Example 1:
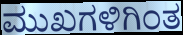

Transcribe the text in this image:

ಮುಖಗಳಿಗಿಂತ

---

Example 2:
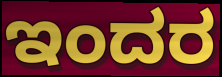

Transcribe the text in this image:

ಇಂದರ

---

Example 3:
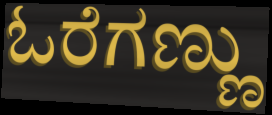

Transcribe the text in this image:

ಓರೆಗಣ್ಣು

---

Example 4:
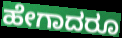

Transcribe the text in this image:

ಹೇಗಾದರೂ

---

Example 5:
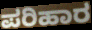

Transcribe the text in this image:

ಪರಿಹಾರ